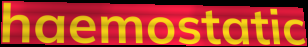
haemostatic